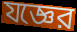
যজ্ঞের